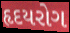
હૃદયરોગ